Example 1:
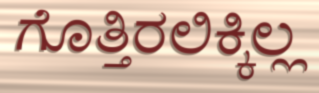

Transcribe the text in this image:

ಗೊತ್ತಿರಲಿಕ್ಕಿಲ್ಲ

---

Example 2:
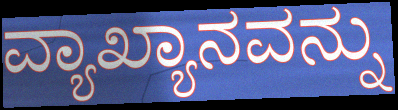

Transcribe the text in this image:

ವ್ಯಾಖ್ಯಾನವನ್ನು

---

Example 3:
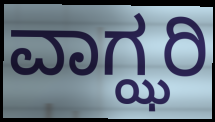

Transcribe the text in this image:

ವಾಗ್ಝರಿ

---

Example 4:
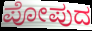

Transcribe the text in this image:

ಪೋಪುದ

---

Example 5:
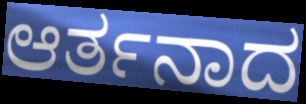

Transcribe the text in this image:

ಆರ್ತನಾದ